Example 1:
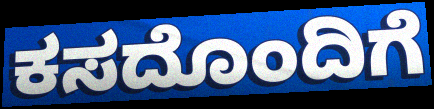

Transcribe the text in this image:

ಕಸದೊಂದಿಗೆ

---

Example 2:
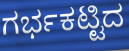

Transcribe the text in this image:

ಗರ್ಭಕಟ್ಟಿದ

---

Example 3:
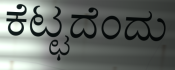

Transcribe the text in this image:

ಕೆಟ್ಟದೆಂದು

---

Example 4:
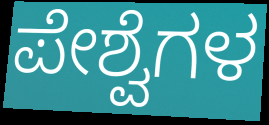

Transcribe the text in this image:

ಪೇಶ್ವೆಗಳ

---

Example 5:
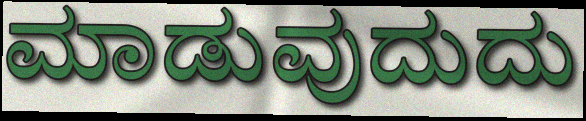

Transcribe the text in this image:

ಮಾಡುವುದುದು